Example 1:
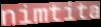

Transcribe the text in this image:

nimtita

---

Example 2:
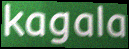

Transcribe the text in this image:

kagala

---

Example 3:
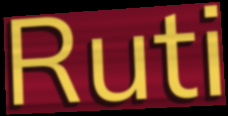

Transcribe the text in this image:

Ruti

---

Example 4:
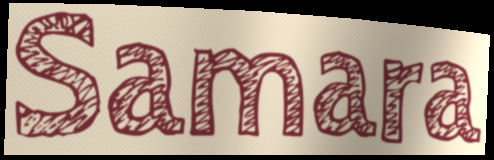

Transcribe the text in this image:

Samara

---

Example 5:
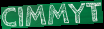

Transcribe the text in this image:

CIMMYT